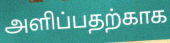
அளிப்பதற்காக